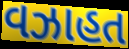
વઝાહત